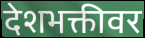
देशभक्तीवर